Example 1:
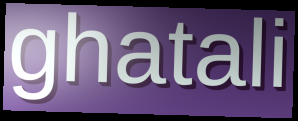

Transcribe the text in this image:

ghatali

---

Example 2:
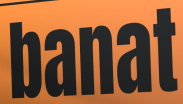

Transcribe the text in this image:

banat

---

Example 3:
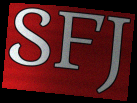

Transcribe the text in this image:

SFJ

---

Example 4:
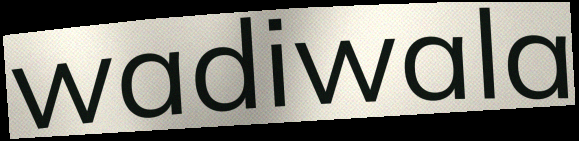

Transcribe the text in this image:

wadiwala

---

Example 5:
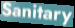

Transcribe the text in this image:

Sanitary